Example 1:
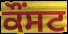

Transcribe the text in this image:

ਕੌਂਸਟ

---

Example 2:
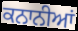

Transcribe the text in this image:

ਕਨਾਨੀਆਂ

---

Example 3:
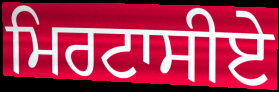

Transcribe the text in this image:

ਮਿਰਟਾਸੀਏ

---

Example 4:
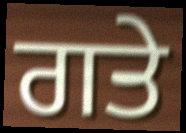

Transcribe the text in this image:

ਗਤੇ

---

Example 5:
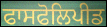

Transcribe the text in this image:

ਫਾਸਫੋਲਿਪੀਡ